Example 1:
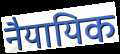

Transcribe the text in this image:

नैयायिक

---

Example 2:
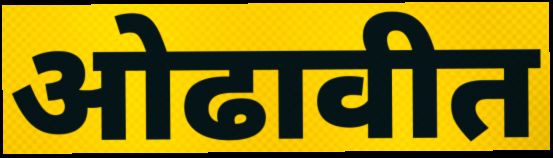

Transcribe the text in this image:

ओढावीत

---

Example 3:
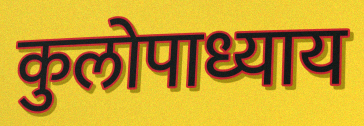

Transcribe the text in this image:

कुलोपाध्याय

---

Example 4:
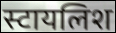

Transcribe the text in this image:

स्टायलिश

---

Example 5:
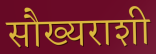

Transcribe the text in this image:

सौख्यराशी